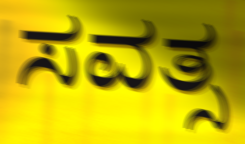
ಸವತ್ಸ